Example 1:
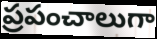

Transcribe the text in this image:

ప్రపంచాలుగా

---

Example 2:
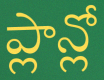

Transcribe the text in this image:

ప్లాన్లో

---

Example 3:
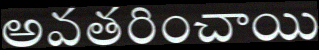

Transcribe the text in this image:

అవతరించాయి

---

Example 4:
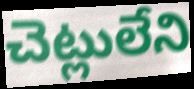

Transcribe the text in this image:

చెట్లులేని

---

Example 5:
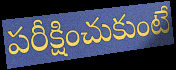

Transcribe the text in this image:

పరీక్షించుకుంటే